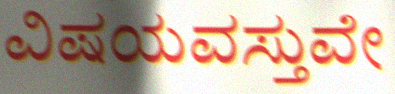
ವಿಷಯವಸ್ತುವೇ